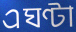
এঘণ্টা